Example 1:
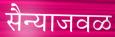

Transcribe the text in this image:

सैन्याजवळ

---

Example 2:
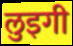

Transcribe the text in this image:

लुइगी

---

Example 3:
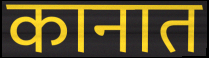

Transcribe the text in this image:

कानात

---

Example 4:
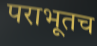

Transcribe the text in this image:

पराभूतच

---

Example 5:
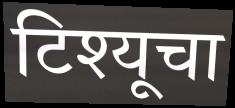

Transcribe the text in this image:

टिश्यूचा